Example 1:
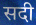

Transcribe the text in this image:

सदी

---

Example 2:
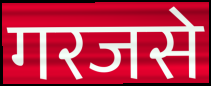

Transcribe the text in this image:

गरजसे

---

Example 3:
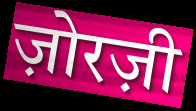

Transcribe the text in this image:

ज़ोरज़ी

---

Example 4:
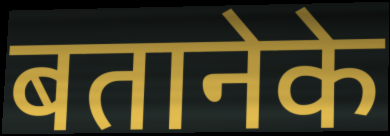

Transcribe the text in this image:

बतानेके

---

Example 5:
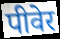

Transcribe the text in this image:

पीवेर